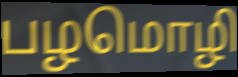
பழமொழி